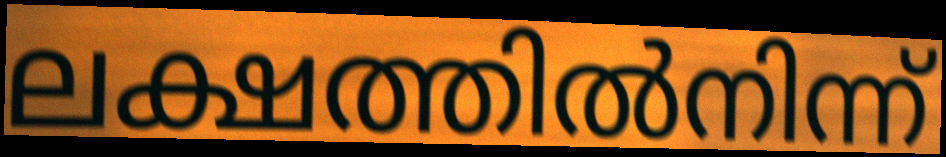
ലക്ഷത്തിൽനിന്ന്